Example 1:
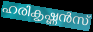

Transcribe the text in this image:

ഹരികൃഷ്ണൻസ്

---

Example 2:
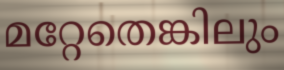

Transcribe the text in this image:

മറ്റേതെങ്കിലും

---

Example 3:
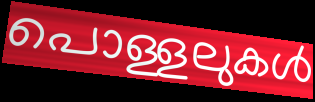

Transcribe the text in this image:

പൊള്ളലുകൾ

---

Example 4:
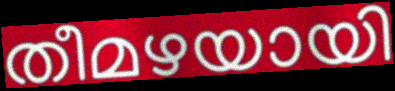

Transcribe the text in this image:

തീമഴയായി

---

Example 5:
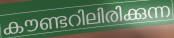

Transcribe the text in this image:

കൗണ്ടറിലിരിക്കുന്ന